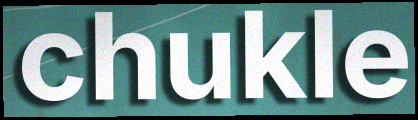
chukle